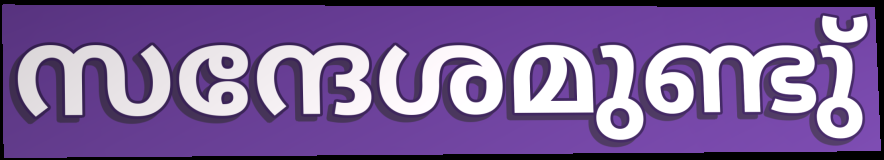
സന്ദേശമുണ്ടു്